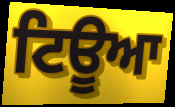
ਟਿਊਆ